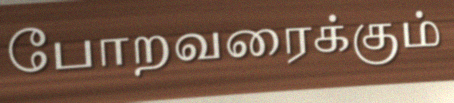
போறவரைக்கும்